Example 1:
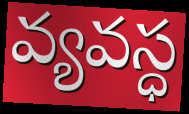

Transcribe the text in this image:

వ్యవస్ధ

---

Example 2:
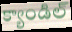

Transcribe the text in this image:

క్యాండిల్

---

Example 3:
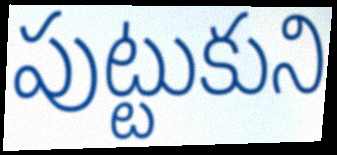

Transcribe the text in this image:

పుట్టుకుని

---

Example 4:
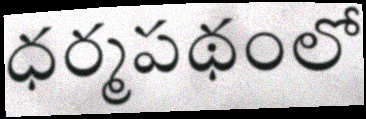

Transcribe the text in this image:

ధర్మపథంలో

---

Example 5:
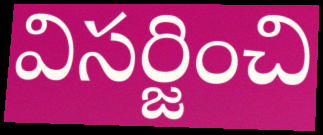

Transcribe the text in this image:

విసర్జించి